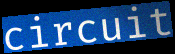
circuit